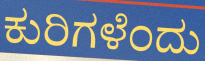
ಕುರಿಗಳೆಂದು